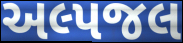
અલ્પજલ